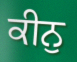
ਕੀਨੁ